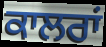
ਕਾਲਰਾਂ